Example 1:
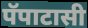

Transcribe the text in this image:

पॅपाटासी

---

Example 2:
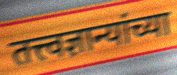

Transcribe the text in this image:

तत्त्वज्ञान्यांच्या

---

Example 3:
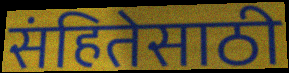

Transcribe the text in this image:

संहितेसाठी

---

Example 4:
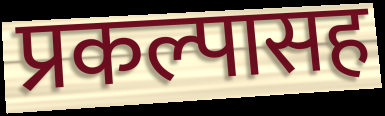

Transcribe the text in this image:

प्रकल्पासह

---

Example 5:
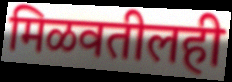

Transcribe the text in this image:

मिळवतीलही